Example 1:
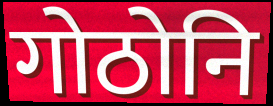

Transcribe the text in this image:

गोठोनि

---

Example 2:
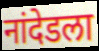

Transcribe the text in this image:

नांदेडला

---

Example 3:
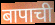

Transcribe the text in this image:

बापाची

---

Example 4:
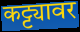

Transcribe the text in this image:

कट्ट्यावर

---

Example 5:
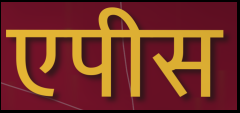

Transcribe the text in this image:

एपीस